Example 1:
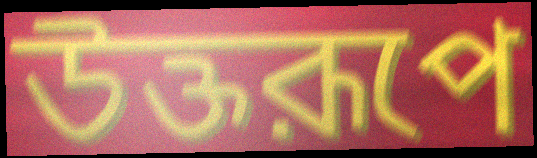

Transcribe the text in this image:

উক্তরূপে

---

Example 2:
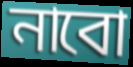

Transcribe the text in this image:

নাবো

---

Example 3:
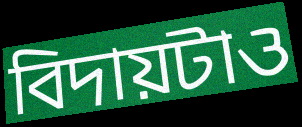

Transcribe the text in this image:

বিদায়টাও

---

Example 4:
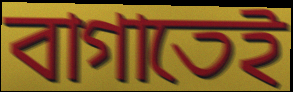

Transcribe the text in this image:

বাগাতেই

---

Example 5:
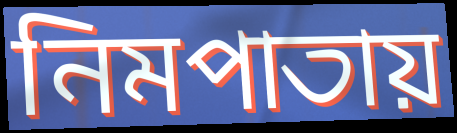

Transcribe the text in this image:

নিমপাতায়